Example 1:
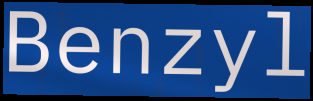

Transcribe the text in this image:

Benzyl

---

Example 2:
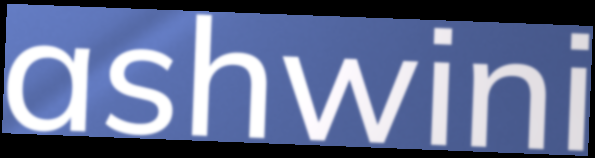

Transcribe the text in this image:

ashwini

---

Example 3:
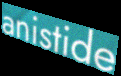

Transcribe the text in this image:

anistide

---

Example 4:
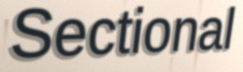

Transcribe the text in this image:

Sectional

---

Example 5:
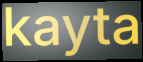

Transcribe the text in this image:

kayta